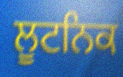
ਲੂਟਨਿਕ